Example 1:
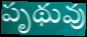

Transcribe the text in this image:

పృథువు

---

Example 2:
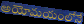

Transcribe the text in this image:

అయోమయంలోనే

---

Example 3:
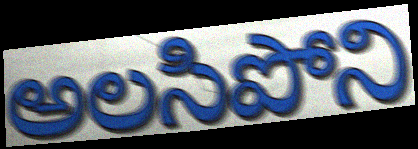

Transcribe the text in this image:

అలసిపోని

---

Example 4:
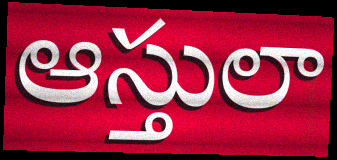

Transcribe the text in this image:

ఆస్తులా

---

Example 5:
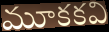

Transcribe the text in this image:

మూకకవి